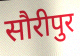
सौरीपुर